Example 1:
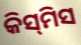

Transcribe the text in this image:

କିସ୍‌ମିସ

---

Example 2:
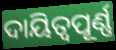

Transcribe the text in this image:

ଦାୟିତ୍ବପୂର୍ଣ୍ଣ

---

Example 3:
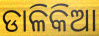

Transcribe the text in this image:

ଡାଳିକିଆ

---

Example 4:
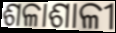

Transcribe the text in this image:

ଶଳାଶାଳୀ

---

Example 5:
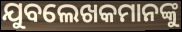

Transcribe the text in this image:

ଯୁବଲେଖକମାନଙ୍କୁ